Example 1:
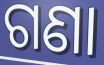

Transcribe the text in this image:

ଗଣା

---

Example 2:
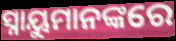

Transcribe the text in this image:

ସ୍ନାୟୁମାନଙ୍କରେ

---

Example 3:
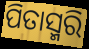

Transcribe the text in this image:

ପିତାସ୍ମରି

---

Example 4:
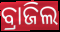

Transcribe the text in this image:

ବ୍ରାଜିଲ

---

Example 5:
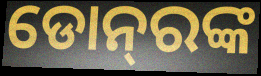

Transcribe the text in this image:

ଡୋନ୍‌ରଙ୍କ